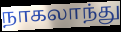
நாகலாந்து